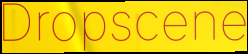
Dropscene